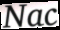
Nac